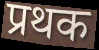
प्रथक